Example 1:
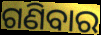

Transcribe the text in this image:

ଗଣିବାର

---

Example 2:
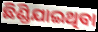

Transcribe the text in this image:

ଛିଣ୍ଡିଯାଇଥିବା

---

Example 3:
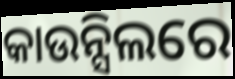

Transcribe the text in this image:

କାଉନ୍ସିଲରେ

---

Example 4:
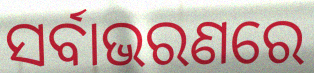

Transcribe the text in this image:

ସର୍ବାଭରଣରେ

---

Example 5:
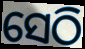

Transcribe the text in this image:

ସେଠି